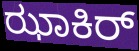
ಝಾಕಿರ್